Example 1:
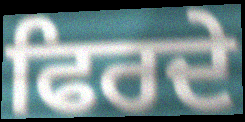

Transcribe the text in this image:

ਫਿਰਦੇ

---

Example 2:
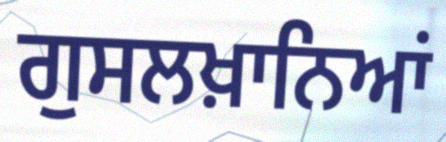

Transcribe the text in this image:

ਗੁਸਲਖ਼ਾਨਿਆਂ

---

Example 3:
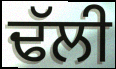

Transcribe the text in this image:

ਢੱਲੀ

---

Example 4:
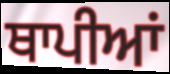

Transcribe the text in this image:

ਥਾਪੀਆਂ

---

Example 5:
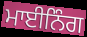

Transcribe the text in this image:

ਮਾਈਨਿੰਗ